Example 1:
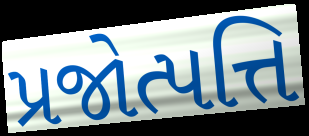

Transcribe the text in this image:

પ્રજોત્પત્તિ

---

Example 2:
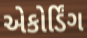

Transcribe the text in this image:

એકોર્ડિંગ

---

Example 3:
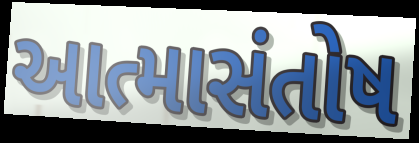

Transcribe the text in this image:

આત્માસંતોષ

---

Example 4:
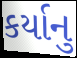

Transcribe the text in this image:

કર્યાનુ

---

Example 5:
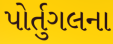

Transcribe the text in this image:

પોર્તુગલના